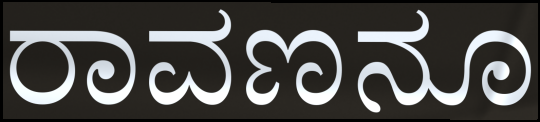
ರಾವಣನೂ